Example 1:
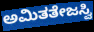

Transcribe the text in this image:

ಅಮಿತತೇಜಸ್ವಿ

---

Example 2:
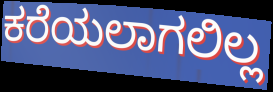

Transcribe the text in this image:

ಕರೆಯಲಾಗಲಿಲ್ಲ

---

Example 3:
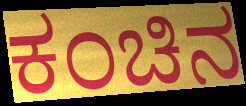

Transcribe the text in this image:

ಕಂಚಿನ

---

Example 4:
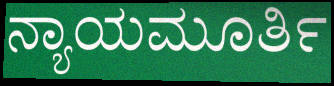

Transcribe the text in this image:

ನ್ಯಾಯಮೂರ್ತಿ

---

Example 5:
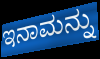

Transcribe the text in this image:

ಇನಾಮನ್ನು